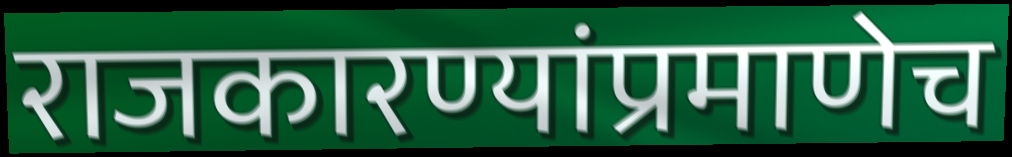
राजकारण्यांप्रमाणेच